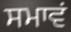
ਸਮਾਵਂ